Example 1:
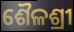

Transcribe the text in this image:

ଶୈଳଶ୍ରୀ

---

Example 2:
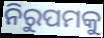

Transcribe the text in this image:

ନିରୁପମକୁ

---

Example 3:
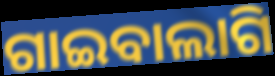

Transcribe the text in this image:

ଗାଇବାଲାଗି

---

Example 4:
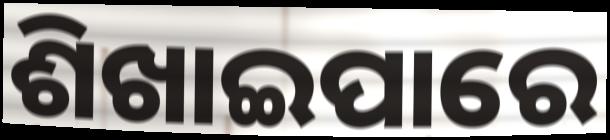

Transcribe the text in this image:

ଶିଖାଇପାରେ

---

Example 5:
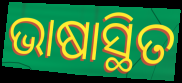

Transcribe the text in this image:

ଭାଷାସ୍ଥିତ